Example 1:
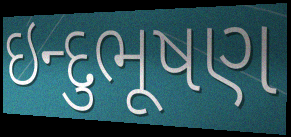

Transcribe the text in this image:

ઇન્દુભૂષણ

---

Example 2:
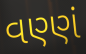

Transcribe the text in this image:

વણ્ણં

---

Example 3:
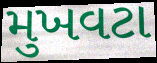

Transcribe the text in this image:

મુખવટા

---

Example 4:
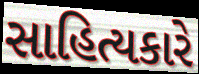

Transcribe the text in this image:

સાહિત્યકારે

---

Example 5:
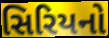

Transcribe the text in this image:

સિરિયનો